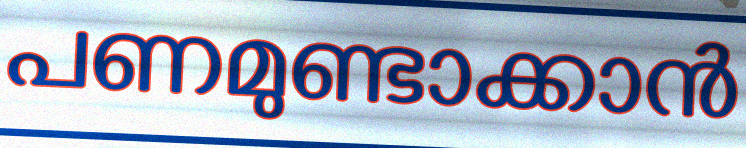
പണമുണ്ടാക്കാൻ